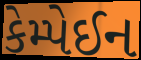
કેમ્પેઈન